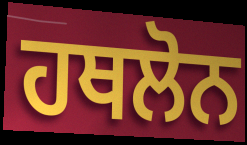
ਹਥਲੋਨ